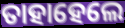
ତାହାହେଲେ